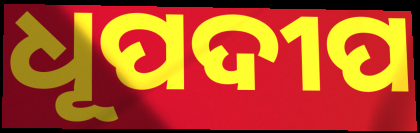
ଧୂପଦୀପ